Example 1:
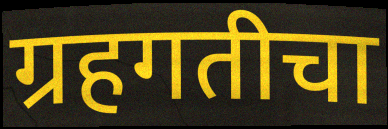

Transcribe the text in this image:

ग्रहगतीचा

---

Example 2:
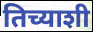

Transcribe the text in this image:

तिच्याशी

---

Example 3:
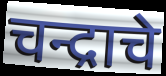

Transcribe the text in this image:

चन्द्राचे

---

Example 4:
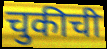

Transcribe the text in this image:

चुकीची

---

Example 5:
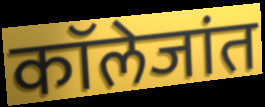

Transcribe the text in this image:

कॉलेजांत